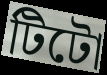
টিটো